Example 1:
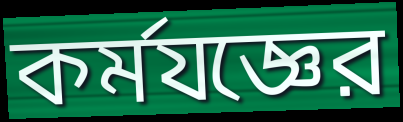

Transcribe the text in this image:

কর্মযজ্ঞের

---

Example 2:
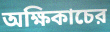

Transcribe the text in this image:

অক্ষিকাচের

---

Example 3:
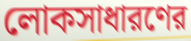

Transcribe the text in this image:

লোকসাধারণের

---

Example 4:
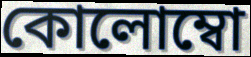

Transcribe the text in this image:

কোলোম্বো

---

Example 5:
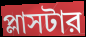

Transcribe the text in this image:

প্লাসটার